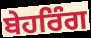
ਬੇਹਰਿੰਗ